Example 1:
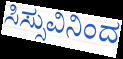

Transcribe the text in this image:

ಸಿಸ್ಸುವಿನಿಂದ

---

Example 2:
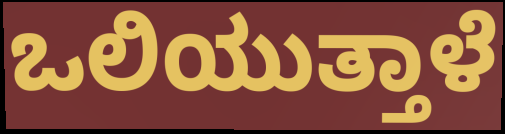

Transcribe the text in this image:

ಒಲಿಯುತ್ತಾಳೆ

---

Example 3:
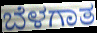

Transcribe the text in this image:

ಬೆಳಗಾತ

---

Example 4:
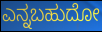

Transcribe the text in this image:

ಎನ್ನಬಹುದೋ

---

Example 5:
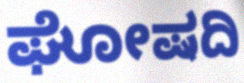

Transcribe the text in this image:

ಘೋಷದಿ